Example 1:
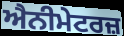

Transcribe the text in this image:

ਐਨੀਮੇਟਰਜ਼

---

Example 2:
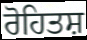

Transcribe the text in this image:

ਰੋਹਿਤਸ਼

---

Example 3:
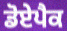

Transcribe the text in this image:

ਡੋਏਪੈਕ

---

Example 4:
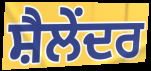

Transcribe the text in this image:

ਸ਼ੈਲੇਂਦਰ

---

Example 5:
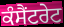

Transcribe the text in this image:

ਕੰਸੈਂਟਰੇਟ